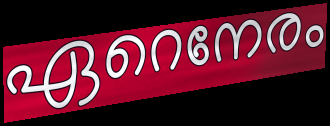
ഏറെനേരം